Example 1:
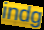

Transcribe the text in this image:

indg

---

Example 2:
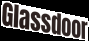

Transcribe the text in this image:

Glassdoor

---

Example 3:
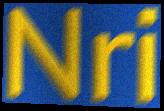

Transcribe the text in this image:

Nri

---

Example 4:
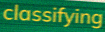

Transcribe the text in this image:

classifying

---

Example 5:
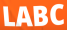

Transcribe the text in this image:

LABC